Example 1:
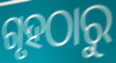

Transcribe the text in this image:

ଗୃହଠାରୁ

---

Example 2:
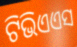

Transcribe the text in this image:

ଟିଭିଏଏସ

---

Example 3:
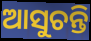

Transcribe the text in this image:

ଆସୁଚନ୍ତି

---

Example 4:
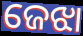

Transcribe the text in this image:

ଜେଝା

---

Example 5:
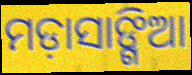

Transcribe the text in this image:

ମଡ଼ାସାଙ୍ଗିଆ